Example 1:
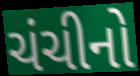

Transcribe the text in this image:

ચંચીનો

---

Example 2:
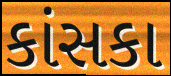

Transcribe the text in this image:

કાંસકા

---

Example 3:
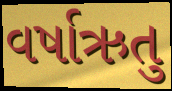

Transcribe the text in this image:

વર્ષાઋતુ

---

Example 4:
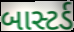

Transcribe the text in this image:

બાસ્ટર્ડ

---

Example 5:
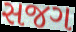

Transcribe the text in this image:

સજગ